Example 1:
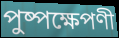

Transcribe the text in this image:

পুষ্পক্ষেপণী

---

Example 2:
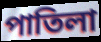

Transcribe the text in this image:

পাতিলা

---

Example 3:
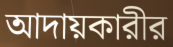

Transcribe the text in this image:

আদায়কারীর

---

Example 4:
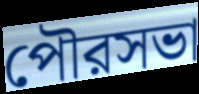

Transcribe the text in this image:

পৌরসভা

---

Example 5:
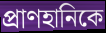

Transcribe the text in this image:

প্রাণহানিকে